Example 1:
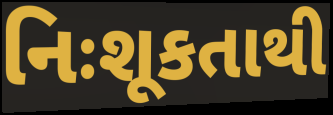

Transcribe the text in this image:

નિઃશૂકતાથી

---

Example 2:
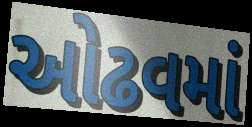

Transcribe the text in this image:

ઓઢવમાં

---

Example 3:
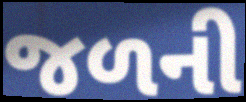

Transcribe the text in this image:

જળની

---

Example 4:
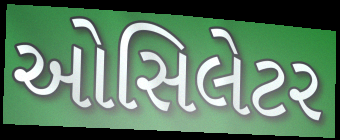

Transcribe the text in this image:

ઓસિલેટર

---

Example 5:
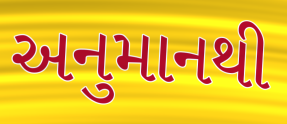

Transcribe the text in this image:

અનુમાનથી